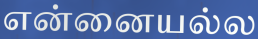
என்னையல்ல